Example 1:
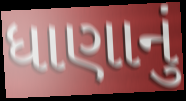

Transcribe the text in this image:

ધાણાનું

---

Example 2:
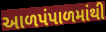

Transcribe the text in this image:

આળપંપાળમાંથી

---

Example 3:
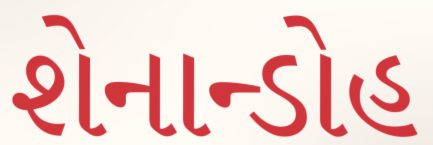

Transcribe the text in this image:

શેનાન્ડોહ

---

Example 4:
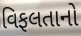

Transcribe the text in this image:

વિફલતાનો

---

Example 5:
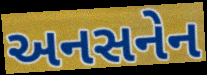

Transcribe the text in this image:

અનસનેન